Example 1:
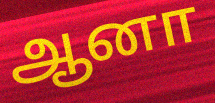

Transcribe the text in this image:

ஆனா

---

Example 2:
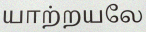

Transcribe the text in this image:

யாற்றயலே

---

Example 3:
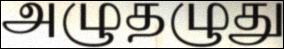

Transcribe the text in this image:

அழுதழுது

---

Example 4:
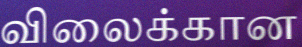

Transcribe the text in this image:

விலைக்கான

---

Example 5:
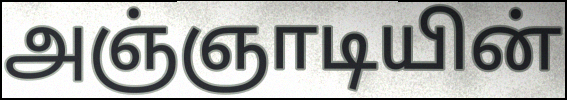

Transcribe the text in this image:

அஞ்ஞாடியின்